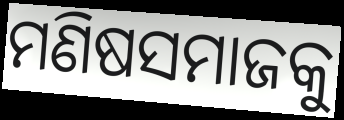
ମଣିଷସମାଜକୁ